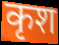
कृश